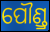
ପୌଣ୍ଡ୍ର